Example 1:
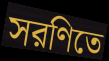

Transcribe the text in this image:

সরণিতে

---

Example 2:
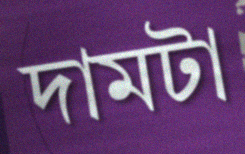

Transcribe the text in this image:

দামটা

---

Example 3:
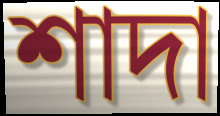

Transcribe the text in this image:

শাদা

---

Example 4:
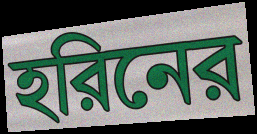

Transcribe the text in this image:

হরিনের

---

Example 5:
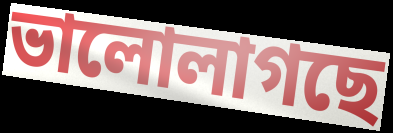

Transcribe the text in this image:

ভালোলাগছে